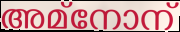
അമ്നോന്